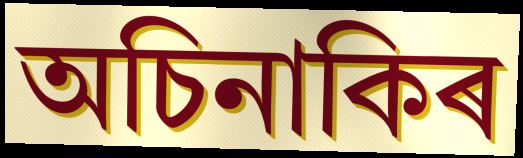
অচিনাকিৰ